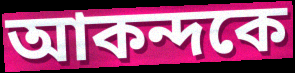
আকন্দকে